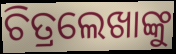
ଚିତ୍ରଲେଖାଙ୍କୁ